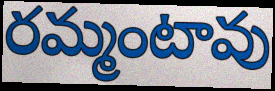
రమ్మంటావు